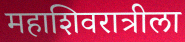
महाशिवरात्रीला